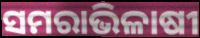
ସମରାଭିଳାଷୀ